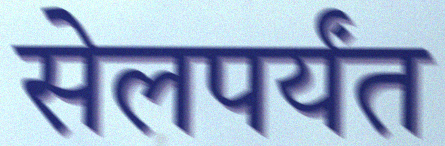
सेलपर्यंत